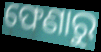
ଫେଣାରୁ